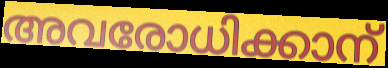
അവരോധിക്കാന്